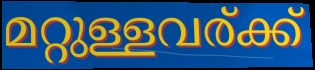
മറ്റുള്ളവര്ക്ക്